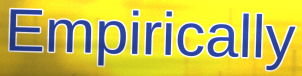
Empirically